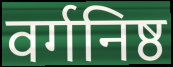
वर्गनिष्ठ